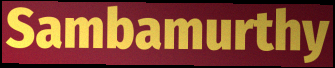
Sambamurthy